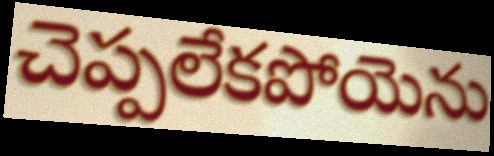
చెప్పలేకపోయెను